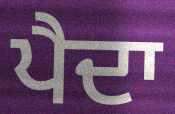
ਪੈਦਾ